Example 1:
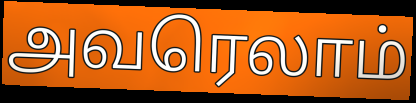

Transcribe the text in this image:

அவரெலாம்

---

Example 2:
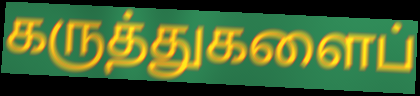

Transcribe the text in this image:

கருத்துகளைப்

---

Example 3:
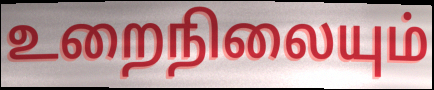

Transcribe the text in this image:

உறைநிலையும்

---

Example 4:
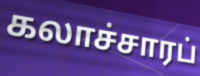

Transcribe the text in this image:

கலாச்சாரப்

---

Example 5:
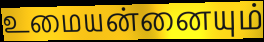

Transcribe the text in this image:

உமையன்னையும்